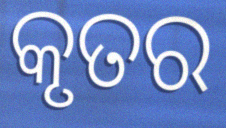
କୃତର